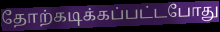
தோற்கடிக்கப்பட்டபோது